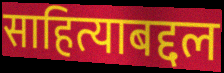
साहित्याबद्दल